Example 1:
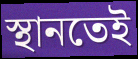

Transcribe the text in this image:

স্থানতেই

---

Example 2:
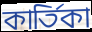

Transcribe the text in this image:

কাৰ্তিকা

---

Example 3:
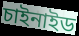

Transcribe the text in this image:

চাইনাইড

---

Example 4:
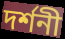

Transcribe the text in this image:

দৰ্শনী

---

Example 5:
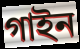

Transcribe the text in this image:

গাইন